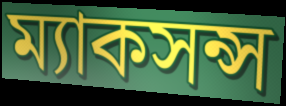
ম্যাকসন্স